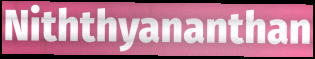
Niththyananthan